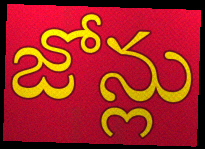
జోన్లు